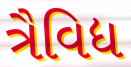
ત્રૈવિદ્ય